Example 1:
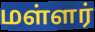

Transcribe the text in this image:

மள்ளர்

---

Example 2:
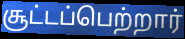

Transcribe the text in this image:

சூட்டப்பெற்றார்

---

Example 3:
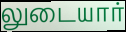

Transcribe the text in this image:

லுடையார்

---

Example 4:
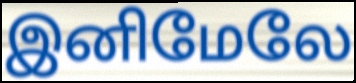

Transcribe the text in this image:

இனிமேலே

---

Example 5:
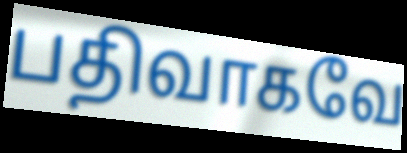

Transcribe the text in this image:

பதிவாகவே